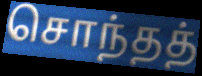
சொந்தத்